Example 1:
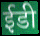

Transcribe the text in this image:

ई़डी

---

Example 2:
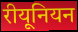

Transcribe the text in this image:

रीयूनियन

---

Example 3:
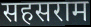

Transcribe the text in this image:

सहसराम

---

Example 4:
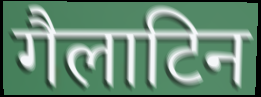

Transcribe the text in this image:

गैलाटिन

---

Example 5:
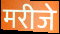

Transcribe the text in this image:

मरीजे